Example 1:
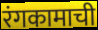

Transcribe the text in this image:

रंगकामाची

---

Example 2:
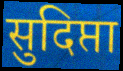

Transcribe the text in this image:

सुदिप्ता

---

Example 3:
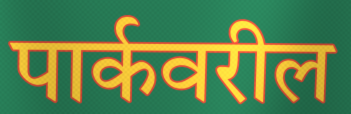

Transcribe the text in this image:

पार्कवरील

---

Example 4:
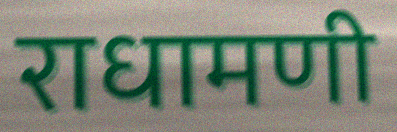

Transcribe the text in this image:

राधामणी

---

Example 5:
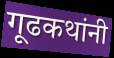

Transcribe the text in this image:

गूढकथांनी